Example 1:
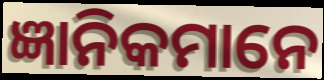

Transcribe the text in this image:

ଜ୍ଞାନିକମାନେ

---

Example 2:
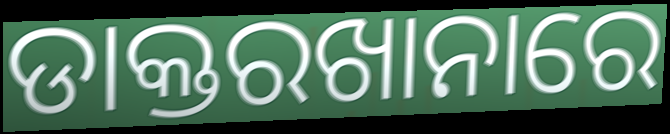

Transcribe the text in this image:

ଡାକ୍ତରଖାନାରେ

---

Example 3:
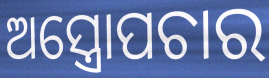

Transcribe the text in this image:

ଅସ୍ତ୍ରୋପଚାର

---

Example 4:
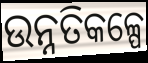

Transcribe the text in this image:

ଉନ୍ନତିକଳ୍ପେ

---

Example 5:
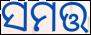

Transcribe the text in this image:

ସମତ୍ତ